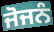
ਜੋਜਨੰ